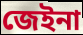
জেইনা